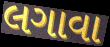
લગાવા